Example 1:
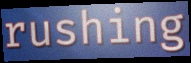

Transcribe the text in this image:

rushing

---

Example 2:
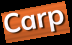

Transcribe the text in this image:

Carp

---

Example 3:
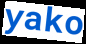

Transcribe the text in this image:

yako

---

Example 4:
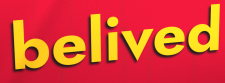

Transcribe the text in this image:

belived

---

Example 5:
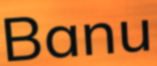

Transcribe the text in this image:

Banu